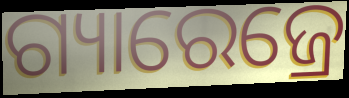
ଗ୍ୟାରେଜ୍ରେ